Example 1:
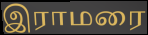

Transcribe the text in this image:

இராமரை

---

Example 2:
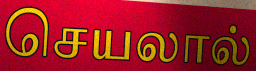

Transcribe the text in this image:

செயலால்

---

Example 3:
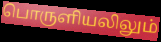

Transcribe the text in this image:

பொருளியலிலும்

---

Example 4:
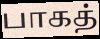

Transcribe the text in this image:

பாகத்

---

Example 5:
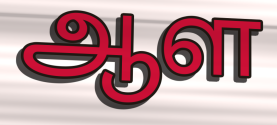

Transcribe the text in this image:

ஆள